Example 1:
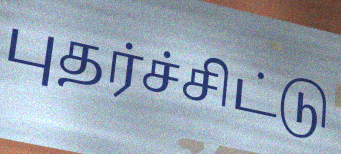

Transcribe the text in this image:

புதர்ச்சிட்டு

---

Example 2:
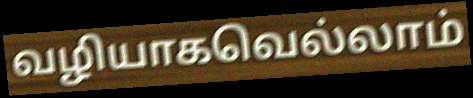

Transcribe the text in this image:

வழியாகவெல்லாம்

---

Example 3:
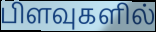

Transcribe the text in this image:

பிளவுகளில்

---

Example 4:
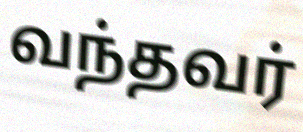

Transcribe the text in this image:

வந்தவர்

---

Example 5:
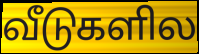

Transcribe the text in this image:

வீடுகளில